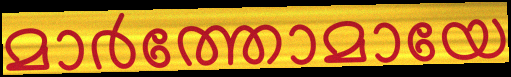
മാർത്തോമായേ